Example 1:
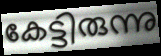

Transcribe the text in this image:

കേട്ടിരുന്നു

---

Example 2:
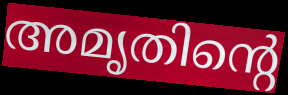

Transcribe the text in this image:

അമൃതിന്റെ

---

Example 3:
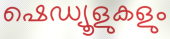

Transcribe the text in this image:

ഷെഡ്യൂളുകളും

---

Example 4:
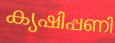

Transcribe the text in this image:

ക്യഷിപ്പണി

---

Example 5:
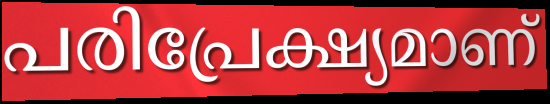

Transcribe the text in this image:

പരിപ്രേക്ഷ്യമാണ്